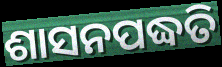
ଶାସନପଦ୍ଧତି